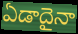
ఏడాదైనా